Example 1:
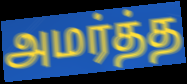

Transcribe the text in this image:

அமர்த்த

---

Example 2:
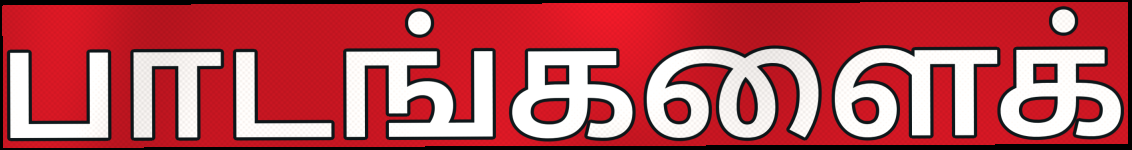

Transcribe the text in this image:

பாடங்களைக்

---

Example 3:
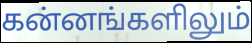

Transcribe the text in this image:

கன்னங்களிலும்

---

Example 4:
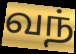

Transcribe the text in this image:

வந்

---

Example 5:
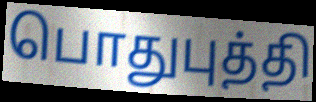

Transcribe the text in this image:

பொதுபுத்தி